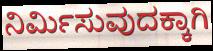
ನಿರ್ಮಿಸುವುದಕ್ಕಾಗಿ